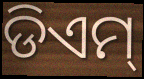
ଡିଏମ୍